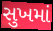
સુખમાં